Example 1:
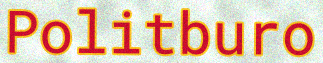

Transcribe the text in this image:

Politburo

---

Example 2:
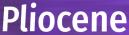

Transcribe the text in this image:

Pliocene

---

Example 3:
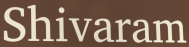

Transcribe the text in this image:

Shivaram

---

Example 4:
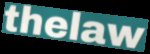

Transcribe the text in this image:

thelaw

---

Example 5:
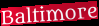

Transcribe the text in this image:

Baltimore